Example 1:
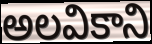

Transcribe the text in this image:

అలవికాని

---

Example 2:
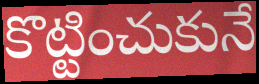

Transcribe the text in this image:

కొట్టించుకునే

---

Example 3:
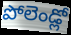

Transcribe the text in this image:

పోలెండ్లో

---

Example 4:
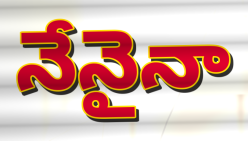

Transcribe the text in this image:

నేనైనా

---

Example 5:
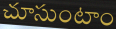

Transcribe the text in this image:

చూసుంటాం